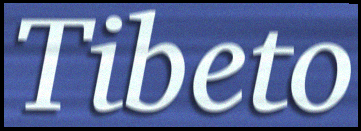
Tibeto